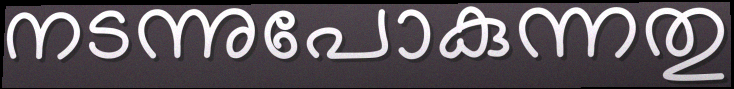
നടന്നുപോകുന്നതു